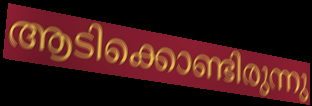
ആടിക്കൊണ്ടിരുന്നു